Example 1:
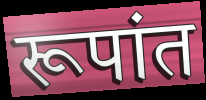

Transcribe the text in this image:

रूपांत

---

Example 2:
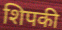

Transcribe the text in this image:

शिपकी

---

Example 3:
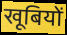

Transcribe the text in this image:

खूबियों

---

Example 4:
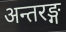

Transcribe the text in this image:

अन्तरङ्ग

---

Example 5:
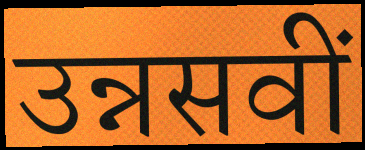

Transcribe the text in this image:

उन्नसवीं